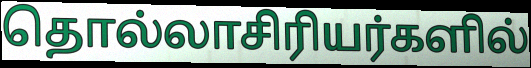
தொல்லாசிரியர்களில்